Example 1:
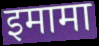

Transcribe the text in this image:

इमामा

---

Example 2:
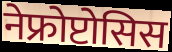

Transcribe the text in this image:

नेफ्रोप्टोसिस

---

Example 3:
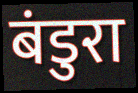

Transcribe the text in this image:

बंडुरा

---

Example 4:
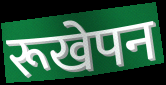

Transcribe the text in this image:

रूखेपन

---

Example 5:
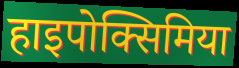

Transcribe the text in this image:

हाइपोक्सिमिया